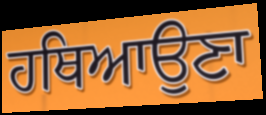
ਹਥਿਆਉਣਾ